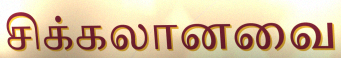
சிக்கலானவை